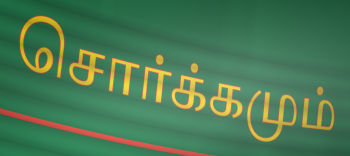
சொர்க்கமும்